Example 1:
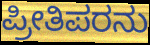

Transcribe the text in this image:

ಪ್ರೀತಿಪರನು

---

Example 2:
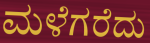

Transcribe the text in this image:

ಮಳೆಗರೆದು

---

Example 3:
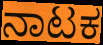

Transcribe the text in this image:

ನಾಟಕ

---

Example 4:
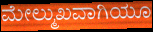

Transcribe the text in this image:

ಮೇಲ್ಮುಖವಾಗಿಯೂ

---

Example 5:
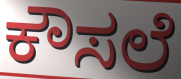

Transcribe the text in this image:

ಕೌಸಲೆ